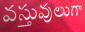
వస్తువులుగా